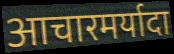
आचारमर्यादा